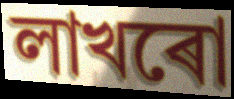
লাখৰো